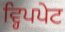
ਵ੍ਹਿਪਪੇਟ